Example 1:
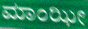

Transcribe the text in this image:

ಮಾಂಝೀ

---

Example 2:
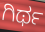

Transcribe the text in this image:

ಗಿರ್ಥ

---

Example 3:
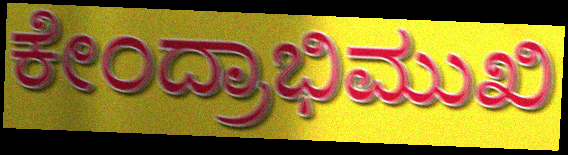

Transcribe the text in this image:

ಕೇಂದ್ರಾಭಿಮುಖಿ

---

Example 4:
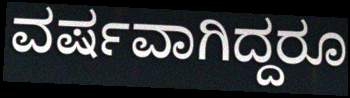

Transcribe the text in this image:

ವರ್ಷವಾಗಿದ್ದರೂ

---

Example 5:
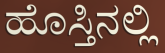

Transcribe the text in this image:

ಹೊಸ್ತಿನಲ್ಲಿ